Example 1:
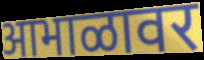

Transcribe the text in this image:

आभाळावर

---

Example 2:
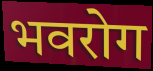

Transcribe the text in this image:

भवरोग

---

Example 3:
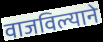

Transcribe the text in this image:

वाजविल्याने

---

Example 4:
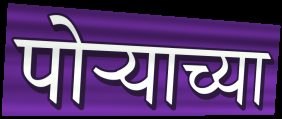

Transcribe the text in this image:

पोऱ्याच्या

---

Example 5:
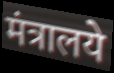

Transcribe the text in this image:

मंत्रालये